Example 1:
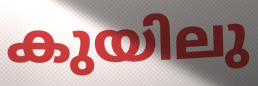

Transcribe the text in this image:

കുയിലു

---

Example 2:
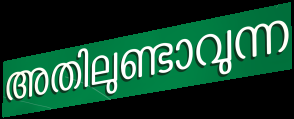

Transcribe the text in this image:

അതിലുണ്ടാവുന്ന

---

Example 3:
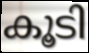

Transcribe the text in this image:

കൂടി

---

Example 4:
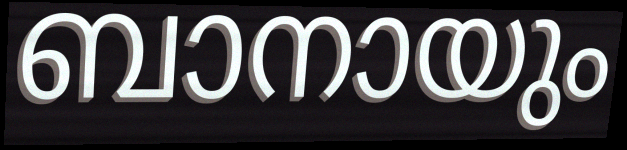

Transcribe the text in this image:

ബാനായും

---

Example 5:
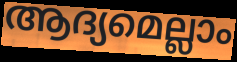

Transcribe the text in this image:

ആദ്യമെല്ലാം